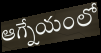
ఆగ్నేయంలో